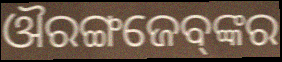
ଔରଙ୍ଗଜେବ୍‌ଙ୍କର